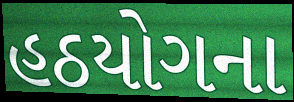
હઠયોગના